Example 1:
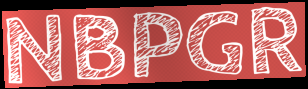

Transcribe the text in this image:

NBPGR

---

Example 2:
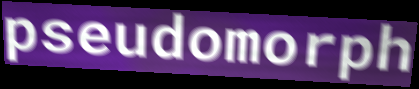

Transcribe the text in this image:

pseudomorph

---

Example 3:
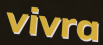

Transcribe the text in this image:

vivra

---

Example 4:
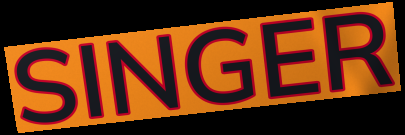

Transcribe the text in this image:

SINGER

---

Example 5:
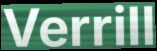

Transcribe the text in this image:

Verrill